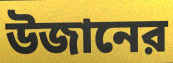
উজানের